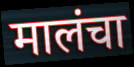
मालंचा